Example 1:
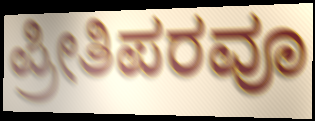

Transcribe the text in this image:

ಪ್ರೀತಿಪರವೂ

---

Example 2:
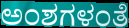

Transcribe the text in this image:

ಅಂಶಗಳಂತೆ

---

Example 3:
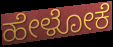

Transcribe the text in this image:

ಹೇಳೋಕೆ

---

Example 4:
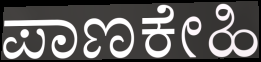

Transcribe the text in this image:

ಪಾಣಕೇಹಿ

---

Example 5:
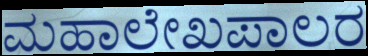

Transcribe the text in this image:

ಮಹಾಲೇಖಪಾಲರ